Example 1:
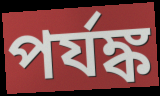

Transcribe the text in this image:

পর্যঙ্ক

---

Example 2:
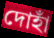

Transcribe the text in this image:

দোহাঁ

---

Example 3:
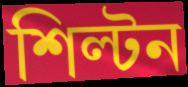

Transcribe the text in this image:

শিল্টন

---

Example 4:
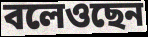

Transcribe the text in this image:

বলেওছেন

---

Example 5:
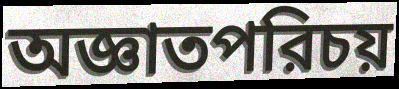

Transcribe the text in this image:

অজ্ঞাতপরিচয়